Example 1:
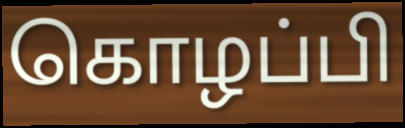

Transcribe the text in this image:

கொழப்பி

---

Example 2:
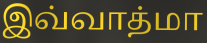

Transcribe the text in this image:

இவ்வாத்மா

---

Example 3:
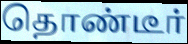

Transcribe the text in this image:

தொண்டீர்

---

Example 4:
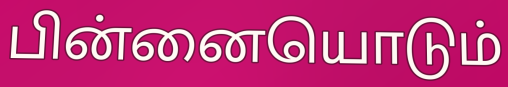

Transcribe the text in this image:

பின்னையொடும்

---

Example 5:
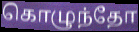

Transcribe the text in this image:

கொழுந்தோ